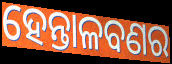
ହେନ୍ତାଳବଣର